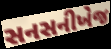
સનસનીખેજ